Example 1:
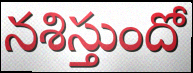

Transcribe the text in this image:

నశిస్తుందో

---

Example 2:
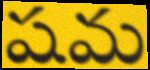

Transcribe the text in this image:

షమ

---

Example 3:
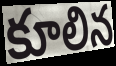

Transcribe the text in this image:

కూలిన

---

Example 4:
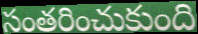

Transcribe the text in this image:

సంతరించుకుంది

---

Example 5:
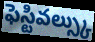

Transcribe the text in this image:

ఫెస్టివల్స్కు